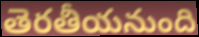
తెరతీయనుంది